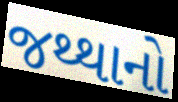
જથ્થાનો